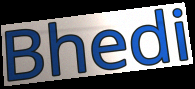
Bhedi